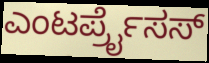
ಎಂಟರ್ಪ್ರೈಸಸ್